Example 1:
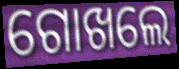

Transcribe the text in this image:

ଗୋଖଲେ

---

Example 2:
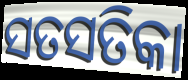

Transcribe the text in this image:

ସତସତିକା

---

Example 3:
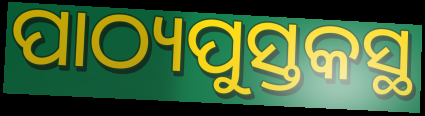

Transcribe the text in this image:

ପାଠ୍ୟପୁସ୍ତକସ୍ଥ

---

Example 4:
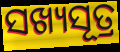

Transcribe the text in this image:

ସଖ୍ୟସୂତ୍ର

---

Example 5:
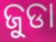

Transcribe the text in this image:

ଜୁଡା